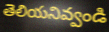
తెలియనివ్వండి